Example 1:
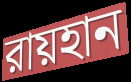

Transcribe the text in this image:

রায়হান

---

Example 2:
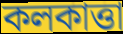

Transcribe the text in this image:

কলকাত্তা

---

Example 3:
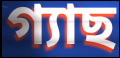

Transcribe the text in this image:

গ্যাছ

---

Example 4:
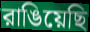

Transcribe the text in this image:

রাঙিয়েছি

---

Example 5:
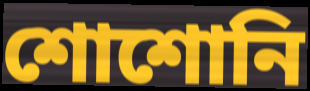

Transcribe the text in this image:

শোশোনি